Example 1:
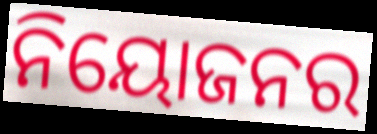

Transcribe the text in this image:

ନିୟୋଜନର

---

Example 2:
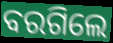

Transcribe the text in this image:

ବରଗିଲେ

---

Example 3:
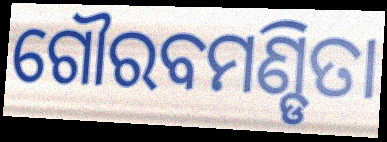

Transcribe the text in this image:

ଗୌରବମଣ୍ଡିତା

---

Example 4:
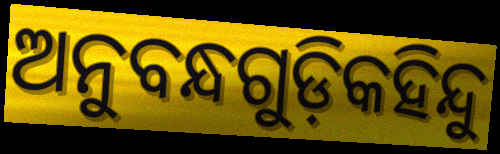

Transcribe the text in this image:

ଅନୁବନ୍ଧଗୁଡ଼ିକହିନ୍ଦୁ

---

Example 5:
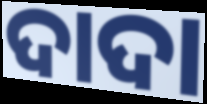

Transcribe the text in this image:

ଦାଦା